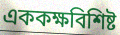
এককক্ষবিশিষ্ট